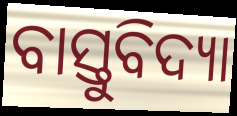
ବାସ୍ତୁବିଦ୍ୟା